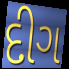
દીગ